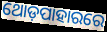
ଥୋଡ଼ପାହାରରେ